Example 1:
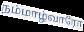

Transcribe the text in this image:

நம்மாழ்வாரோ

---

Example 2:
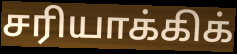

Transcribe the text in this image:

சரியாக்கிக்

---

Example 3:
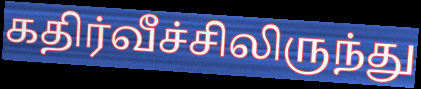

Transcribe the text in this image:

கதிர்வீச்சிலிருந்து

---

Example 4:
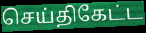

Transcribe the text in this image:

செய்திகேட்ட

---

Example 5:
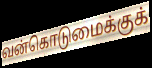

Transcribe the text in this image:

வன்கொடுமைக்குக்